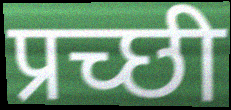
प्रच्छी